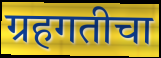
ग्रहगतीचा